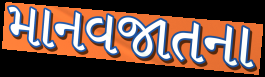
માનવજાતના